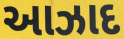
આઝાદ